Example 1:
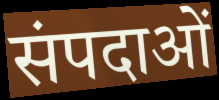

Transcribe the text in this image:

संपदाओं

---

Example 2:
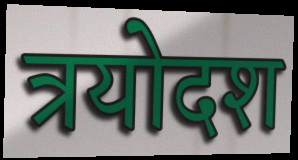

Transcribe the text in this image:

त्रयोदश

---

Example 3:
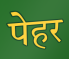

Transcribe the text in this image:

पेहर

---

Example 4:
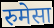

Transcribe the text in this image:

रुमेसा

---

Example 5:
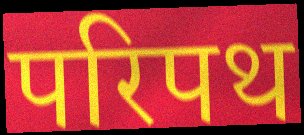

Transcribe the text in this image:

परिपथ